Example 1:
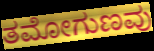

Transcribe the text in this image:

ತಮೋಗುಣವು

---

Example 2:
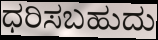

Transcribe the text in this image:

ಧರಿಸಬಹುದು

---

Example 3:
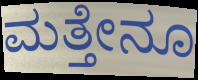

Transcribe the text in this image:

ಮತ್ತೇನೂ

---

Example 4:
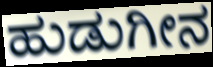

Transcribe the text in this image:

ಹುಡುಗೀನ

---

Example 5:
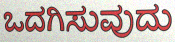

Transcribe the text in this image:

ಒದಗಿಸುವುದು